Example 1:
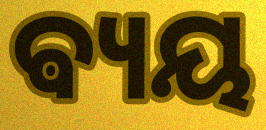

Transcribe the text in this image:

ଵ୍ୟୟ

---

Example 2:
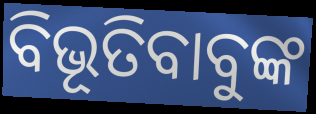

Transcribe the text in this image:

ବିଭୂତିବାବୁଙ୍କ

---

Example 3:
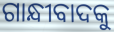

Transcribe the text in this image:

ଗାନ୍ଧୀବାଦକୁ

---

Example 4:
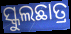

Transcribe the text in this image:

ସ୍କୁଲଛାତ୍ର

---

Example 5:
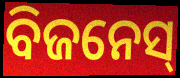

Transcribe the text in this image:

ବିଜନେସ୍